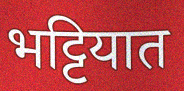
भट्टियात